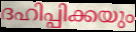
ദഹിപ്പിക്കയും